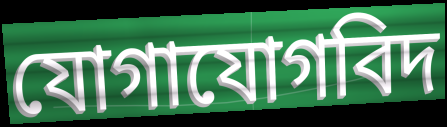
যোগাযোগবিদ